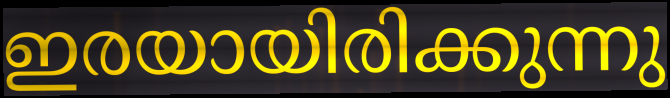
ഇരയായിരിക്കുന്നു